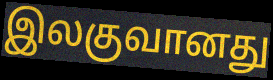
இலகுவானது